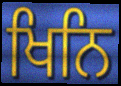
ਖਿਨਿ